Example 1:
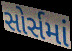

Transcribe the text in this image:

સોર્સમાં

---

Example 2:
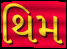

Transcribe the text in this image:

થિમ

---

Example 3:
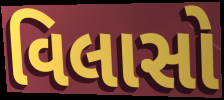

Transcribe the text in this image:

વિલાસો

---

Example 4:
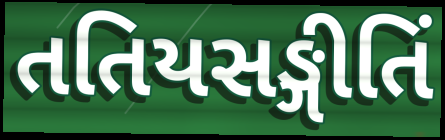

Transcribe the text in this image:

તતિયસઙ્ગીતિં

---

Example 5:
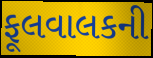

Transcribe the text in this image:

ફૂલવાલકની